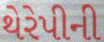
થેરેપીની